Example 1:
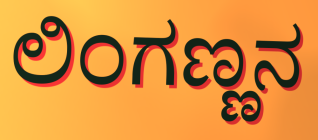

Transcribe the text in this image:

ಲಿಂಗಣ್ಣನ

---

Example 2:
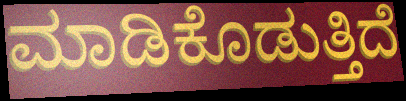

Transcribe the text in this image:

ಮಾಡಿಕೊಡುತ್ತಿದೆ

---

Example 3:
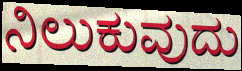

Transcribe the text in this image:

ನಿಲುಕುವುದು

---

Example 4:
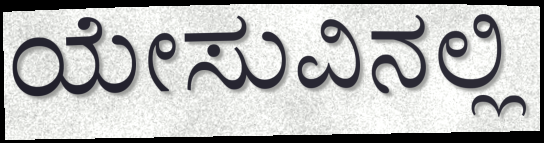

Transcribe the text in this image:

ಯೇಸುವಿನಲ್ಲಿ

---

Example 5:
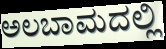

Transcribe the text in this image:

ಅಲಬಾಮದಲ್ಲಿ